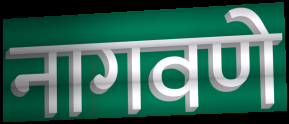
नागवणे